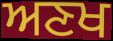
ਅਣਖ